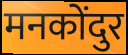
मनकोंदुर